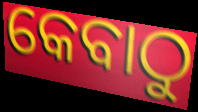
କେବାଠୁ